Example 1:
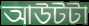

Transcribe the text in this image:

আউটটা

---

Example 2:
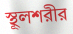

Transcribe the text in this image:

স্থূলশরীর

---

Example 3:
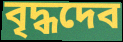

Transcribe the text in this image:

বৃদ্ধদেব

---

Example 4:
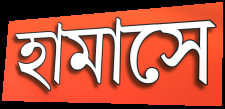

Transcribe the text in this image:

হামাসে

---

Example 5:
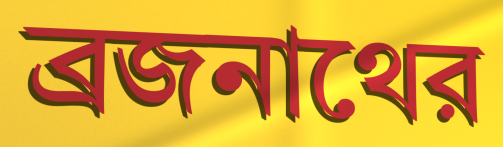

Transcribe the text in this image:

ব্রজনাথের